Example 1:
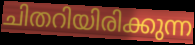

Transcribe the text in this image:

ചിതറിയിരിക്കുന്ന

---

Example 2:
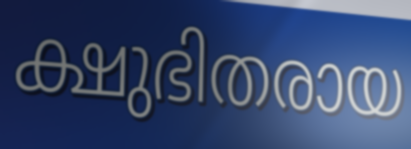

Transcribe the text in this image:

ക്ഷുഭിതരായ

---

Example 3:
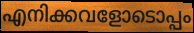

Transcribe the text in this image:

എനിക്കവളോടൊപ്പം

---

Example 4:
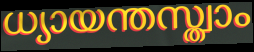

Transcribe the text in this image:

ധ്യായന്തസ്ത്വാം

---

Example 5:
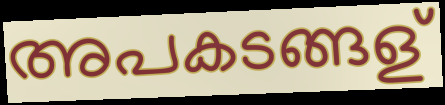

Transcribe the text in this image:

അപകടങ്ങള്